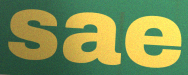
sae